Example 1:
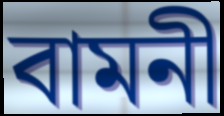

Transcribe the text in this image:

বামনী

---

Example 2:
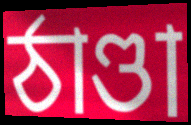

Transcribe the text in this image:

ঠাণ্ডা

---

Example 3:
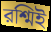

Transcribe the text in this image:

রশ্মিই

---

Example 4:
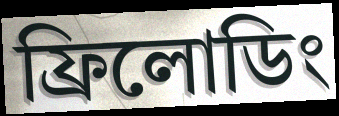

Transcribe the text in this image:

ফ্রিলোডিং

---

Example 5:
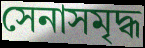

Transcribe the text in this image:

সেনাসমৃদ্ধ